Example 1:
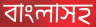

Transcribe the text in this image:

বাংলাসহ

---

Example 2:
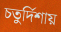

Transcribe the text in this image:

চতুর্দিশায়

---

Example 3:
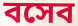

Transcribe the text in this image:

বসেব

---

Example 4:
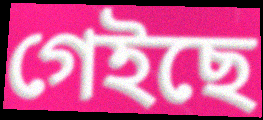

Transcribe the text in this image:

গেইছে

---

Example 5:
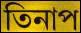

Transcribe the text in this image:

তিনাপ